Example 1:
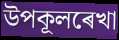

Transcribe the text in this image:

উপকূলৰেখা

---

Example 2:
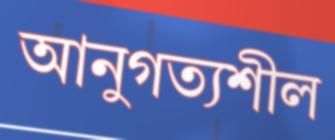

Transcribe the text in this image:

আনুগত্যশীল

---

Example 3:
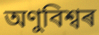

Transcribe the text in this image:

অণুবিশ্বৰ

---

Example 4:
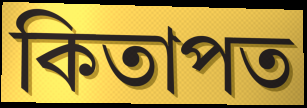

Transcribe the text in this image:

কিতাপত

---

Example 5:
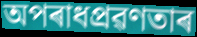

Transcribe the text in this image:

অপৰাধপ্ৰৱণতাৰ